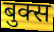
बुक्स